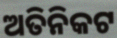
ଅତିନିକଟ